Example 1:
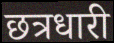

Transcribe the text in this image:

छत्रधारी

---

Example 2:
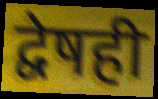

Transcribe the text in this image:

द्वेषही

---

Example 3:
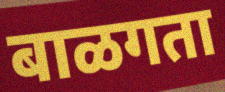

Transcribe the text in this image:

बाळगता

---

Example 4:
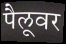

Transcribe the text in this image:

पैलूवर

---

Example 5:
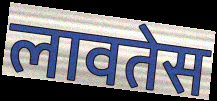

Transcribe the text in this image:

लावतेस